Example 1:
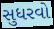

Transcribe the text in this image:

સુધરવો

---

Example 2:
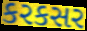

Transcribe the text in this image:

કરકસર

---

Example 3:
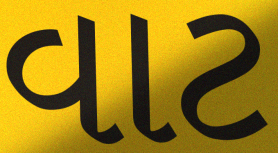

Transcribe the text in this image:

વાટ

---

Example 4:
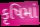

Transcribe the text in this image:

કૃષિમાં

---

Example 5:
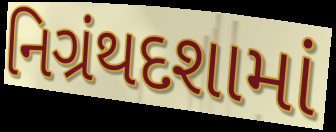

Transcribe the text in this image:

નિગ્રંથદશામાં